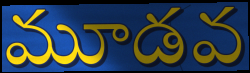
మూడవ